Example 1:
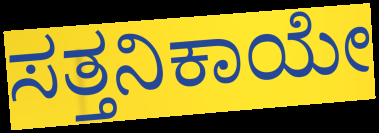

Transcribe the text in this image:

ಸತ್ತನಿಕಾಯೇ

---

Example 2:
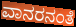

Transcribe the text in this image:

ವಾನರನಂತೆ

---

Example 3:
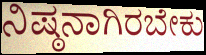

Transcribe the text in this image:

ನಿಷ್ಠನಾಗಿರಬೇಕು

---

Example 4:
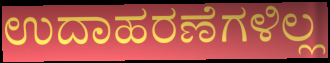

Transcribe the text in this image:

ಉದಾಹರಣೆಗಳಿಲ್ಲ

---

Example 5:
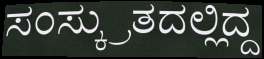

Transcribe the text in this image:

ಸಂಸ್ಕ್ರುತದಲ್ಲಿದ್ದ